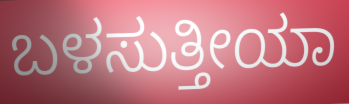
ಬಳಸುತ್ತೀಯಾ